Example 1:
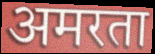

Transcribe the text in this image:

अमरता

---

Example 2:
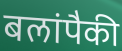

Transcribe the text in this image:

बलांपैकी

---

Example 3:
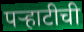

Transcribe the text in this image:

पऱ्हाटीची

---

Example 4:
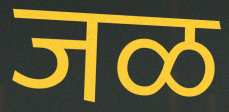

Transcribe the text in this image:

जळ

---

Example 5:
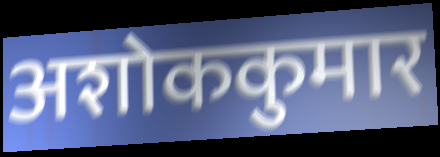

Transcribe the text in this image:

अशोककुमार